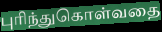
புரிந்துகொள்வதை